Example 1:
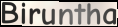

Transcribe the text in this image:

Biruntha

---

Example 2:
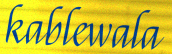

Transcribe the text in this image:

kablewala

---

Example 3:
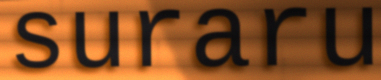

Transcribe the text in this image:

suraru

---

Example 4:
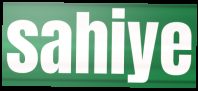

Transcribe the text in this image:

sahiye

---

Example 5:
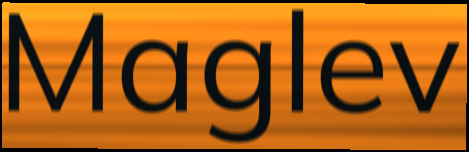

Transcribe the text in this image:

Maglev